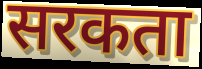
सरकता